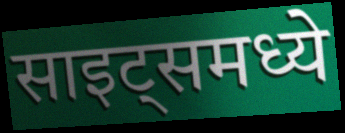
साइट्समध्ये